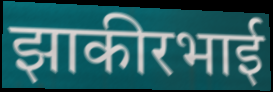
झाकीरभाई